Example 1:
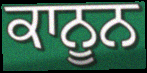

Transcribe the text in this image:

ਕਾਨੂਨ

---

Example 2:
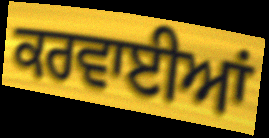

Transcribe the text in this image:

ਕਰਵਾਈਆਂ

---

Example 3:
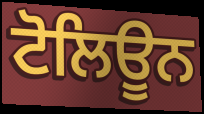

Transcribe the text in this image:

ਟੋਲਿਊਨ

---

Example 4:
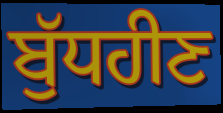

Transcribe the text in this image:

ਬੁੱਧਹੀਣ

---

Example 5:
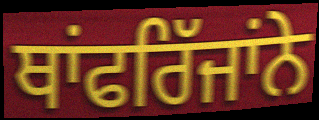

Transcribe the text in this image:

ਥਾਂਫਰਿੱਜਾਂਨੇ